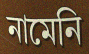
নামেনি